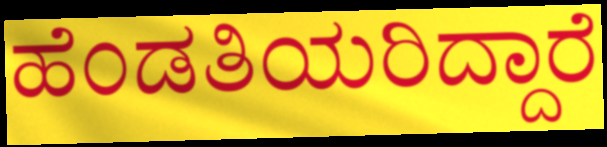
ಹೆಂಡತಿಯರಿದ್ದಾರೆ